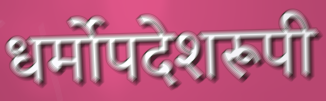
धर्मोपदेशरूपी